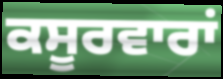
ਕਸੂਰਵਾਰਾਂ